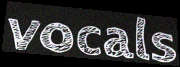
vocals